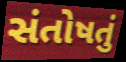
સંતોષતું